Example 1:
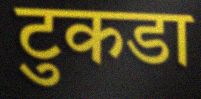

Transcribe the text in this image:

टुकडा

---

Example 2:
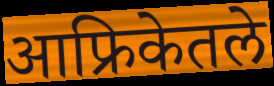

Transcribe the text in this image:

आफ्रिकेतले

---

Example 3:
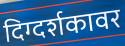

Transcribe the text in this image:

दिग्दर्शकावर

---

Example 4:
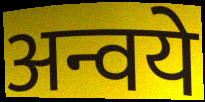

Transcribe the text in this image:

अन्‍वये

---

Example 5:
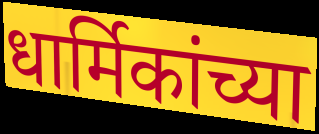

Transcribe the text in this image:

धार्मिकांच्या